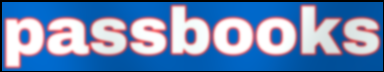
passbooks